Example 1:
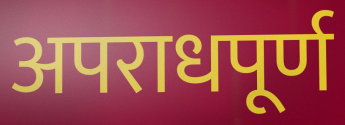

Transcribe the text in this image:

अपराधपूर्ण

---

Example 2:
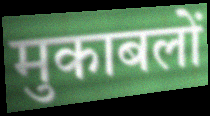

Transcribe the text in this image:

मुकाबलों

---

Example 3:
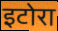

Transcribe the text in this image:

इटोरा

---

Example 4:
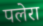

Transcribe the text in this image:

पलेरा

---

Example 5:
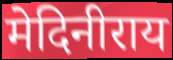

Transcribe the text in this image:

मेदिनीराय